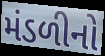
મંડળીનો